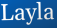
Layla